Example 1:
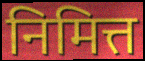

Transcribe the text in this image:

निमित्त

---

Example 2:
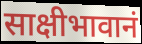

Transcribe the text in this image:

साक्षीभावानं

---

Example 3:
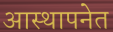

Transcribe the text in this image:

आस्थापनेत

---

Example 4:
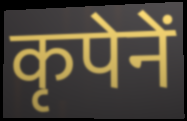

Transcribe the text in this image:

कृपेनें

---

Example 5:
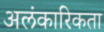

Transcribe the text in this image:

अलंकारिकता